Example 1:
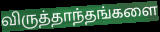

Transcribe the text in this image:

விருத்தாந்தங்களை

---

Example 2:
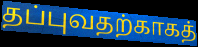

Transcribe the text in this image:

தப்புவதற்காகத்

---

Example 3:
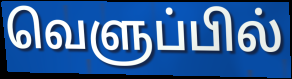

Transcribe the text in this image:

வெளுப்பில்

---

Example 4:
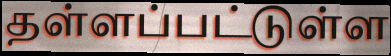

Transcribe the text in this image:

தள்ளப்பட்டுள்ள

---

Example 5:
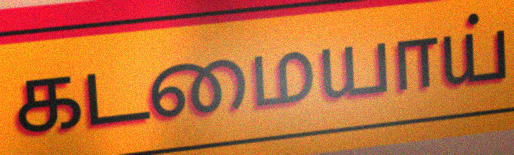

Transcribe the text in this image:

கடமையாய்